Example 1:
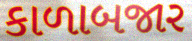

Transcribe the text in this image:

કાળાબજાર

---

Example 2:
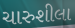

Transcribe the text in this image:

ચારુશીલા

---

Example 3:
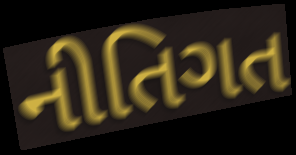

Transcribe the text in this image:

નીતિગત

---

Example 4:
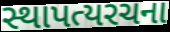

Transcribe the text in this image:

સ્થાપત્યરચના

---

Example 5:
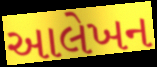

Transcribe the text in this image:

આલેખન